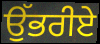
ਉੱਭਰੀਏ